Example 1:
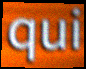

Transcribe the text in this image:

qui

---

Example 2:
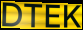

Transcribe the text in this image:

DTEK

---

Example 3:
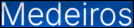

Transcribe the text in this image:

Medeiros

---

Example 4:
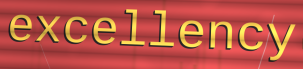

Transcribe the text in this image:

excellency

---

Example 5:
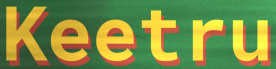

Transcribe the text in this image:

Keetru